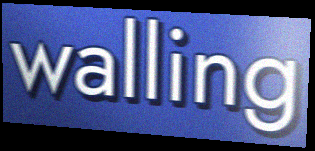
walling